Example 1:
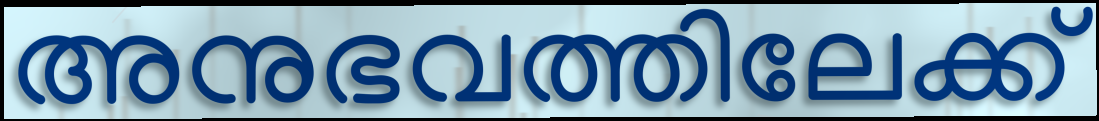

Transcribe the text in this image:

അനുഭവത്തിലേക്ക്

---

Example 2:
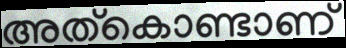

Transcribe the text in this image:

അത്കൊണ്ടാണ്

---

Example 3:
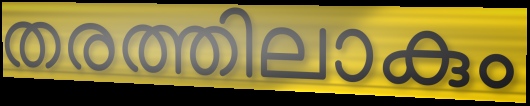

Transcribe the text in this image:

തരത്തിലാകും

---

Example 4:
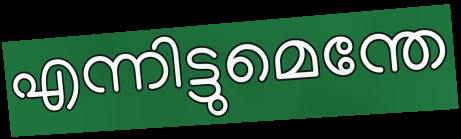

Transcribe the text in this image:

എന്നിട്ടുമെന്തേ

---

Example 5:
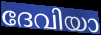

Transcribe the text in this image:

ദേവിയാ